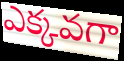
ఎక్కవగా